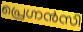
പ്രെഗ്നൻസി